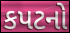
કપટનો